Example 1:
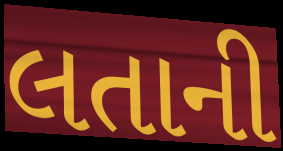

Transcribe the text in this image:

લતાની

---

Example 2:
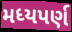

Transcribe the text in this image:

મધ્યપર્ણ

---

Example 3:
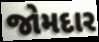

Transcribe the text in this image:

જોમદાર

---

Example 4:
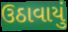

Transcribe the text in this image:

ઉઠાવાયું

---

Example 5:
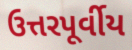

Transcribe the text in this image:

ઉત્તરપૂર્વીય